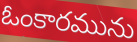
ఓంకారమును